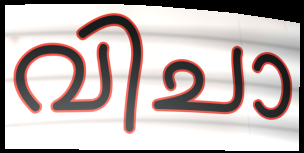
വിചാ